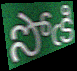
సోఁకి